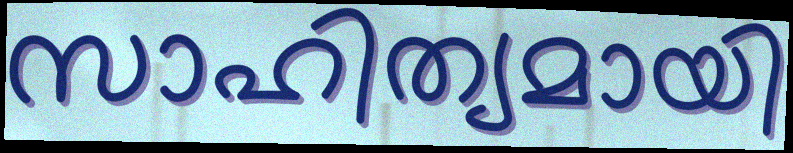
സാഹിത്യമായി